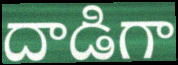
దాడిగా